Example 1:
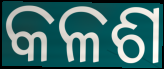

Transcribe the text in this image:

କଳଶ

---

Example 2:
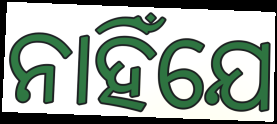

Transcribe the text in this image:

ନାହିଁଯେ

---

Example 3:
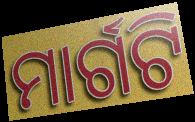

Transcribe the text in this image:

ମାର୍ଗଟି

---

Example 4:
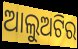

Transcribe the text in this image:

ଆଲୁଅଟିର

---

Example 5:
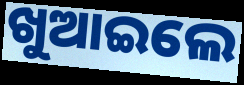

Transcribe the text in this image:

ଖୁଆଇଲେ